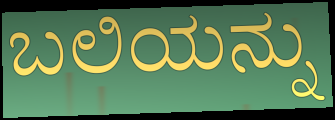
ಬಲಿಯನ್ನು